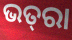
ଭତ୍‌ରା